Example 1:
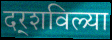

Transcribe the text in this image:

दर्शविल्या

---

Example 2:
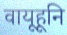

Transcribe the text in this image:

वायूहूनि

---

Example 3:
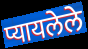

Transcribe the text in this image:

प्यायलेले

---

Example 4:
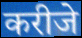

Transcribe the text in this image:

करीजे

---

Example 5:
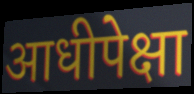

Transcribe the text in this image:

आधीपेक्षा